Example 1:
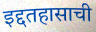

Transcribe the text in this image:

इद्दतहासाची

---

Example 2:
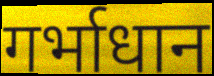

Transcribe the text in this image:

गर्भाधान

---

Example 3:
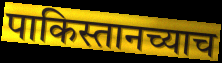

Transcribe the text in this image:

पाकिस्तानच्याच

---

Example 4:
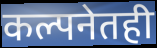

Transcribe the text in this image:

कल्पनेतही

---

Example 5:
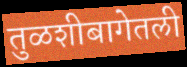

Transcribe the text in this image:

तुळशीबागेतली